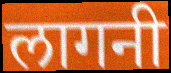
लागनी